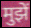
मुझें